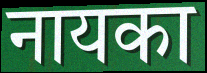
नायका